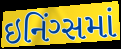
ઇનિંગ્સમાં